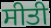
ਸੀਤੀ